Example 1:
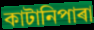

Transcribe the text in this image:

কাটানিপাৰা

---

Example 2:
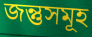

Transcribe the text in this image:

জন্তুসমূহ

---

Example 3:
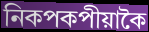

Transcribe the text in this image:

নিকপকপীয়াকৈ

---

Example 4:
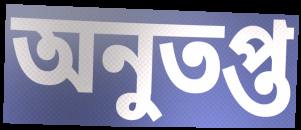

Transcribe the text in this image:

অনুতপ্ত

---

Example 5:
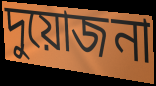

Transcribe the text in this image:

দুয়োজনা